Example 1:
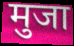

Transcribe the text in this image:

मुजा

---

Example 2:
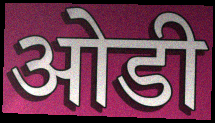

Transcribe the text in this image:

ओडी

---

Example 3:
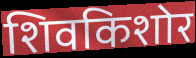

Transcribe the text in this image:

शिवकिशोर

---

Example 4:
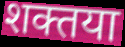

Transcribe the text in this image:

शक्तया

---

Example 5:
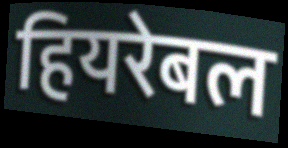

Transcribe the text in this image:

हियरेबल